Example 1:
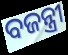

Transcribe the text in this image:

ବଜନ୍ତ୍ରୀ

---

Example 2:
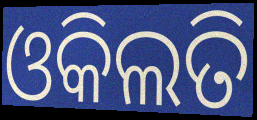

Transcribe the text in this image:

ଓକିଲତି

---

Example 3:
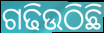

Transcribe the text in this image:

ଗଢିଉଠିଛି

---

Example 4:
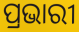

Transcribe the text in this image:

ପ୍ରଭାରୀ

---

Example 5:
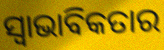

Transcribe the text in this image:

ସ୍ଵାଭାବିକତାର